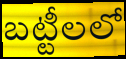
బట్టీలలో